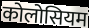
कोलोसियम